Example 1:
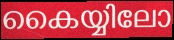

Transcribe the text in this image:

കൈയ്യിലോ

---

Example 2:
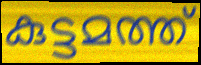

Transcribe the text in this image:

കുട്ടമത്ത്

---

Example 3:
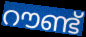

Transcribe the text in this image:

റൗണ്ട്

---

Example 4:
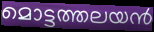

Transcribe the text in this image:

മൊട്ടത്തലയൻ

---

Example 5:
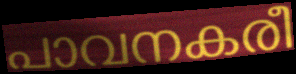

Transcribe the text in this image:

പാവനകരീ